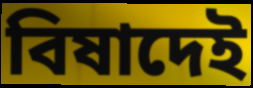
বিষাদেই